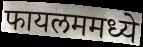
फायलममध्ये